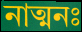
নাত্মনঃ